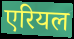
एरियल